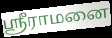
ஸ்ரீராமனை